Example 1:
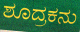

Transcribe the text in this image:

ಶೂದ್ರಕನು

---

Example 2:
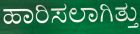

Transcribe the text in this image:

ಹಾರಿಸಲಾಗಿತ್ತು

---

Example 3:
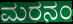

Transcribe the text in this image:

ಮರನಂ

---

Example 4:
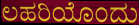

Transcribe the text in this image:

ಲಹರಿಯೊಂದು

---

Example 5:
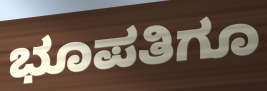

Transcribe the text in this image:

ಭೂಪತಿಗೂ